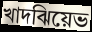
খাদঝিয়েভ